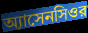
অ্যাসেনসিওর